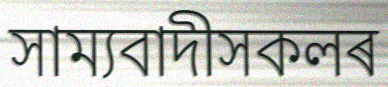
সাম্যবাদীসকলৰ